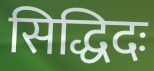
सिद्धिदः